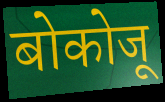
बोकोजू